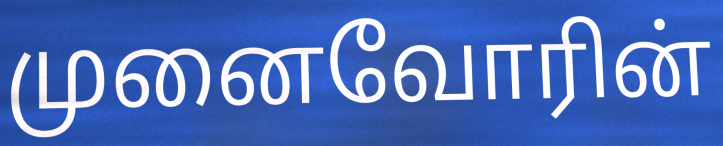
முனைவோரின்